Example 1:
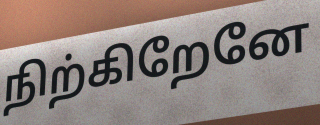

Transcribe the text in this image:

நிற்கிறேனே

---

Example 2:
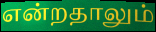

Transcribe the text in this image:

என்றதாலும்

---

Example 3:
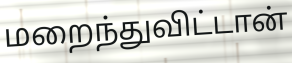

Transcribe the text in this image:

மறைந்துவிட்டான்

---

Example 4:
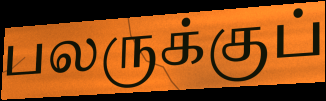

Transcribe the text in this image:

பலருக்குப்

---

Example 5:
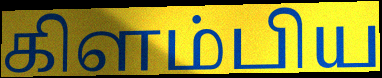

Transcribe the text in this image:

கிளம்பிய